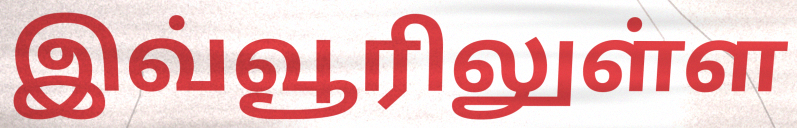
இவ்வூரிலுள்ள